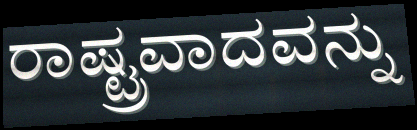
ರಾಷ್ಟ್ರವಾದವನ್ನು